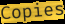
Copies